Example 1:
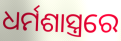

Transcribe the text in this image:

ଧର୍ମଶାସ୍ତ୍ରରେ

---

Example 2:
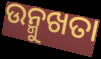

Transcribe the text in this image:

ଉନ୍ମୁଖତା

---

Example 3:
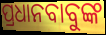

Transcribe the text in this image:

ପ୍ରଧାନବାବୁଙ୍କ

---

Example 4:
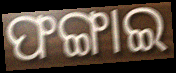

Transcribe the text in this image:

ଫଙ୍ଗାଇ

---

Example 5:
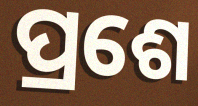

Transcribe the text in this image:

ପ୍ରଶେ